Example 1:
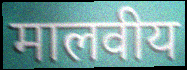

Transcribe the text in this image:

मालवीय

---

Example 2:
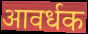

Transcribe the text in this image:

आवर्धक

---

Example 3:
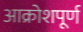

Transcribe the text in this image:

आक्रोशपूर्ण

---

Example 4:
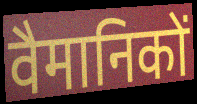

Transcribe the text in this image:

वैमानिकों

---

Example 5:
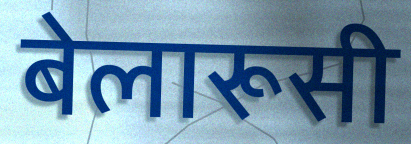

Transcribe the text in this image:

बेलारूसी